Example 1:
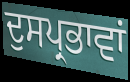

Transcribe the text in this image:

ਦੁਸਪ੍ਰਭਾਵਾਂ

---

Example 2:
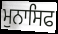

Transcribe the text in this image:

ਮੁਨਾਸਿਫ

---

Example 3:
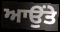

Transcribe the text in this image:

ਆਉਂਤੇ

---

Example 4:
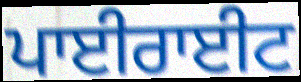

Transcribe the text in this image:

ਪਾਈਰਾਈਟ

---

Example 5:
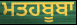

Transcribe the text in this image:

ਮਤਹਬੂਬਾ